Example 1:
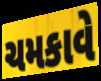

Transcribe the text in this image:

ચમકાવે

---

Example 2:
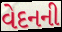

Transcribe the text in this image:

વેદનની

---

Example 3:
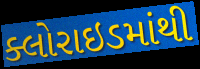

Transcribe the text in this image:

ક્લોરાઇડમાંથી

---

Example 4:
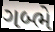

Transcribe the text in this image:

ગબ્ભે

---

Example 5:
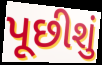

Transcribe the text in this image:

પૂછીશું